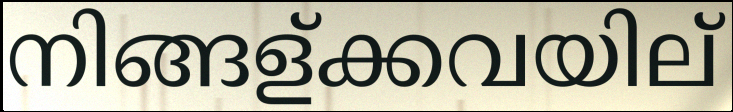
നിങ്ങള്ക്കവയില്